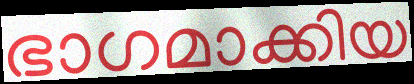
ഭാഗമാക്കിയ